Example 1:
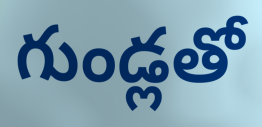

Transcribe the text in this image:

గుండ్లతో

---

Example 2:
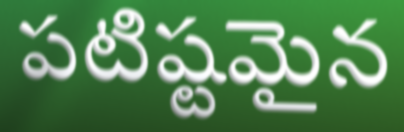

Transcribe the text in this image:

పటిష్టమైన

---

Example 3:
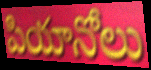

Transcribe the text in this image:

పియానోలు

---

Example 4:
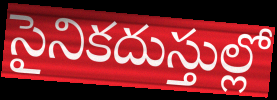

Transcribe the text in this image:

సైనికదుస్తుల్లో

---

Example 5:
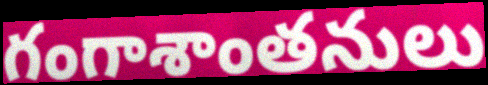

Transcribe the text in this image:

గంగాశాంతనులు